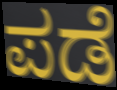
ಪಡೆ